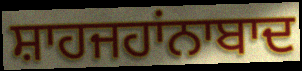
ਸ਼ਾਹਜਹਾਂਨਾਬਾਦ